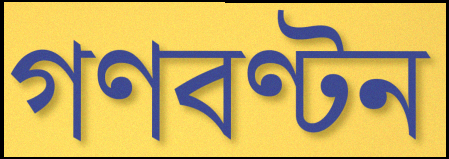
গণবণ্টন